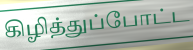
கிழித்துப்போட்ட